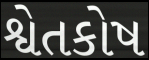
શ્વેતકોષ